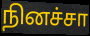
நினச்சா